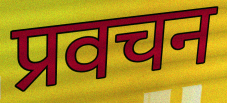
प्रवचन